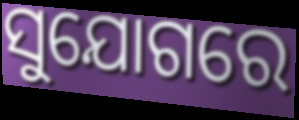
ସୁଯୋଗରେ